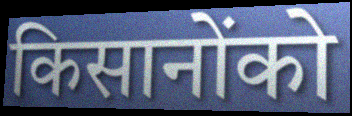
किसानोंको